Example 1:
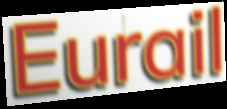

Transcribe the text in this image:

Eurail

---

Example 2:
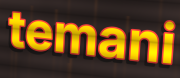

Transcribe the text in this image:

temani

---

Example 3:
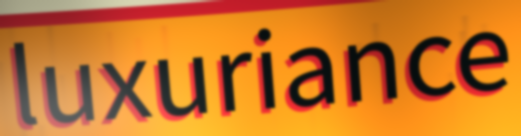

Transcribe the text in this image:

luxuriance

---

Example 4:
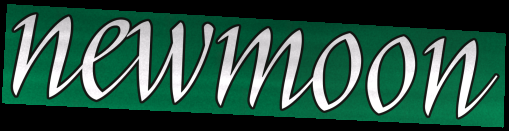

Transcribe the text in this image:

newmoon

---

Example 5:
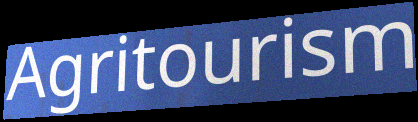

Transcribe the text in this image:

Agritourism